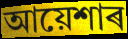
আয়েশাৰ